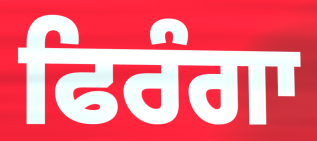
ਫਿਰੰਗਾ